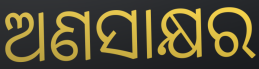
ଅଣସାକ୍ଷର